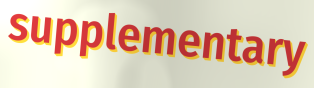
supplementary